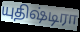
யுதிஷ்டிரா